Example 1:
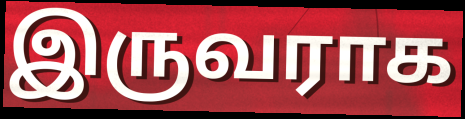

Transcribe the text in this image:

இருவராக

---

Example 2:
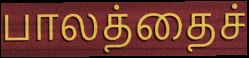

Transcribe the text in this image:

பாலத்தைச்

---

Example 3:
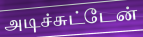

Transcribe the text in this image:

அடிச்சுட்டேன்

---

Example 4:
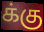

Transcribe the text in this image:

க்கு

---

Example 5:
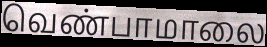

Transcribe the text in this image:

வெண்பாமாலை